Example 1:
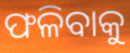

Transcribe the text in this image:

ଫଳିବାକୁ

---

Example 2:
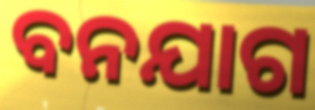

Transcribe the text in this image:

ବନଯାଗ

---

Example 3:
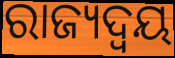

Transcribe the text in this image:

ରାଜ୍ୟଦ୍ୱୟ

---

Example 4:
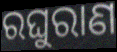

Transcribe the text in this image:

ରଘୁରାଣ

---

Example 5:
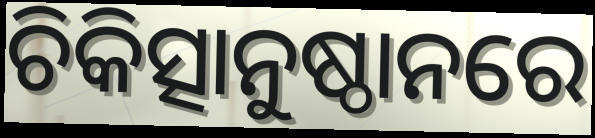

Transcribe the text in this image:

ଚିକିତ୍ସାନୁଷ୍ଠାନରେ